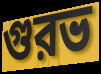
গুরভ